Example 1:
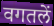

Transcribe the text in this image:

वगतलें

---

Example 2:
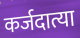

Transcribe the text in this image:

कर्जदात्या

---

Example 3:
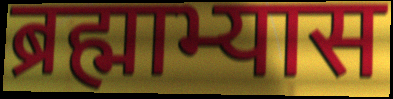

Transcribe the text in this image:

ब्रह्माभ्यास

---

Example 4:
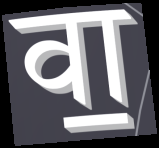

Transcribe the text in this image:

वा॒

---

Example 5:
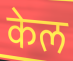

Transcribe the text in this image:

केल